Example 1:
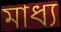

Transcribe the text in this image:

মাধ্য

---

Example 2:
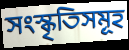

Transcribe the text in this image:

সংস্কৃতিসমূহ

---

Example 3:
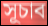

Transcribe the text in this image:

সূচাব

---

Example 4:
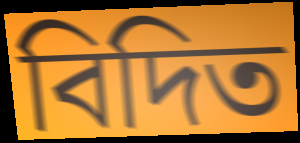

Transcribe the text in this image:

বিদিত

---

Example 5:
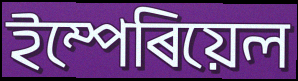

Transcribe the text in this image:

ইম্পেৰিয়েল